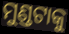
ମୁଣ୍ଡଟାକୁ